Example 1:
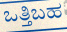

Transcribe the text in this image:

ಒತ್ತಿಬಹ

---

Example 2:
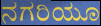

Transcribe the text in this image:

ನಗರಿಯೂ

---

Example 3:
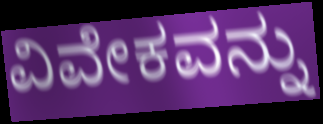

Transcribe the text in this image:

ವಿವೇಕವನ್ನು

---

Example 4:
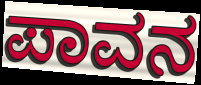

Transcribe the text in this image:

ಪಾವನ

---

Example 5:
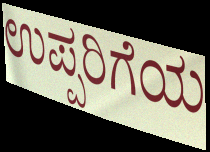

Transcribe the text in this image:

ಉಪ್ಪರಿಗೆಯ